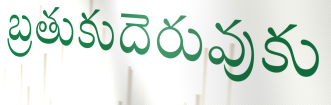
బ్రతుకుదెరువుకు